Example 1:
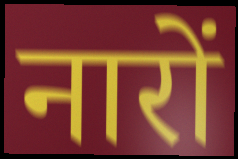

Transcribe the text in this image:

नारों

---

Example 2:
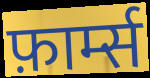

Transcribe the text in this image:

फ़ार्म्स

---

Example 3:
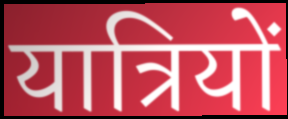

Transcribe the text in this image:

यात्रियों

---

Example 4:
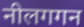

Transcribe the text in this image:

नीलगगन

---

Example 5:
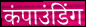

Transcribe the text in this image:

कंपाउंडिंग